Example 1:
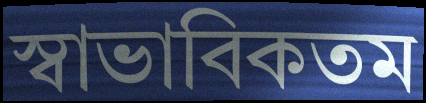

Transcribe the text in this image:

স্বাভাবিকতম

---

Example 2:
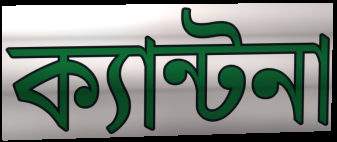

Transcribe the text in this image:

ক্যান্টনা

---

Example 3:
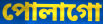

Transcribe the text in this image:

পোলাগো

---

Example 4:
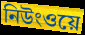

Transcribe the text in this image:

নিউংওয়ে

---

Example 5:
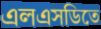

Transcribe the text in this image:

এলএসডিতে